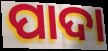
ପାଦା